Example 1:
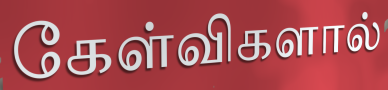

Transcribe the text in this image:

கேள்விகளால்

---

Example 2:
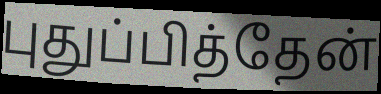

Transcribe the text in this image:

புதுப்பித்தேன்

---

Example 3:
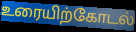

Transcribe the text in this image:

உரையிற்கோடல்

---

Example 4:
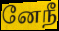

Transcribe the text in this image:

னேநீ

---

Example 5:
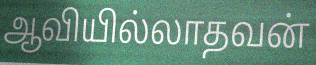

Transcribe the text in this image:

ஆவியில்லாதவன்